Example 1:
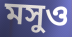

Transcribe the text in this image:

মসুও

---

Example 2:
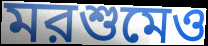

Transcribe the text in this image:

মরশুমেও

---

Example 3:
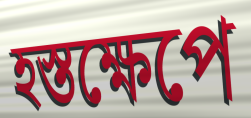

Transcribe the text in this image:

হস্তক্ষেপে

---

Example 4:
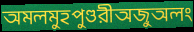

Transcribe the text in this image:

অমলমুহপুণ্ডরীঅজুঅলং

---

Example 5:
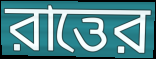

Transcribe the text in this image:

রাত্তের